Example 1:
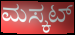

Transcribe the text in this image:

ಮಸ್ಕಟ್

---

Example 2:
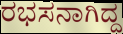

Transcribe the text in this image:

ರಭಸನಾಗಿದ್ದ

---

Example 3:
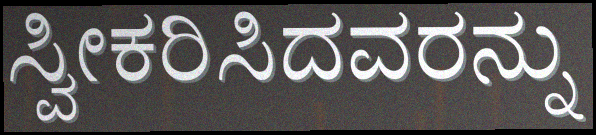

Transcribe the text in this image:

ಸ್ವೀಕರಿಸಿದವರನ್ನು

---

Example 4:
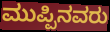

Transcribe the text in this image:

ಮುಪ್ಪಿನವರು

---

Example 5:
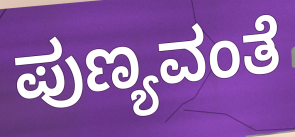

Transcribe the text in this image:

ಪುಣ್ಯವಂತೆ